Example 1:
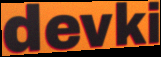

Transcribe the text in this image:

devki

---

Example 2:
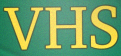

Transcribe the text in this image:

VHS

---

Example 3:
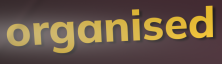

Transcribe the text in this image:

organised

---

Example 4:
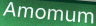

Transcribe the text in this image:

Amomum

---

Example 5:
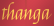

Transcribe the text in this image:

thanga